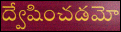
ద్వేషించడమో